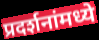
प्रदर्शनांमध्ये